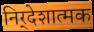
निर्देशात्मक